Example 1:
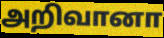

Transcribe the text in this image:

அறிவானா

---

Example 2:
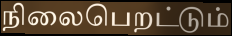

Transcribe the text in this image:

நிலைபெறட்டும்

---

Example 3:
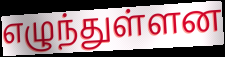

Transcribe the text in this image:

எழுந்துள்ளன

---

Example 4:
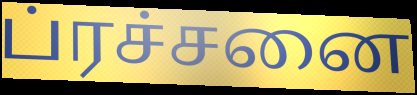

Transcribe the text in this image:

ப்ரச்சனை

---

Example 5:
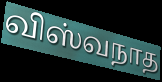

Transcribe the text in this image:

விஸ்வநாத